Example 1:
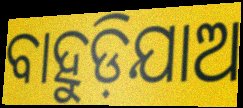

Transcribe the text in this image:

ବାହୁଡ଼ିଯାଅ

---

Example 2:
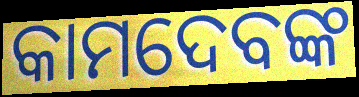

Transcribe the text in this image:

କାମଦେବଙ୍କ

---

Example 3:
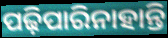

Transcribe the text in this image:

ପଢ଼ିପାରିନାହାନ୍ତି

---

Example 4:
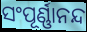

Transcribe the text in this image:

ସଂପୂର୍ଣ୍ଣାନନ୍ଦ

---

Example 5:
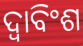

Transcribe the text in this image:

ଦ୍ଵାବିଂଶ